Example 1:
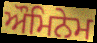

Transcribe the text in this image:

ਔਮਿਨੇਮ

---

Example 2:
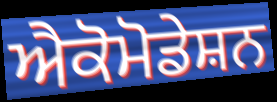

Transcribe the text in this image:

ਐਕੋਮੋਡੇਸ਼ਨ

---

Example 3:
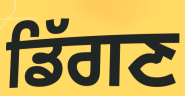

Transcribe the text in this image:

ਡਿੱਗਣ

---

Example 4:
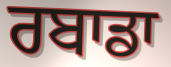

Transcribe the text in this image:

ਰਬਾਡਾ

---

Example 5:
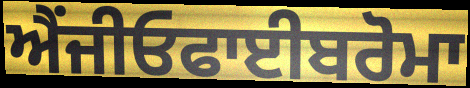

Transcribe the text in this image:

ਐਂਜੀਓਫਾਈਬਰੋਮਾ